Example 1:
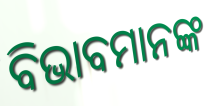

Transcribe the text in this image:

ବିଭାବମାନଙ୍କ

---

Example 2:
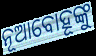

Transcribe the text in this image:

ନୂଆବୋହୂଙ୍କୁ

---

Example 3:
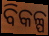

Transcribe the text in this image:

ବିକଳ୍ପ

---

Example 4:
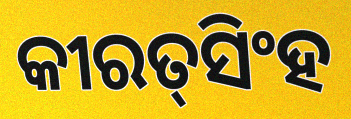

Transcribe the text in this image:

କୀରତ୍‍ସିଂହ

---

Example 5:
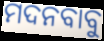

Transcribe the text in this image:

ମଦନବାବୁ